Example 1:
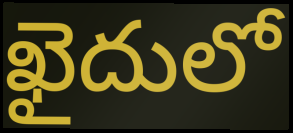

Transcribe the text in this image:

ఖైదులో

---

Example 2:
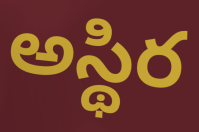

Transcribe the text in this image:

అస్థిర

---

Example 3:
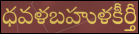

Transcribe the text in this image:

ధవళబహుళకీర్తీ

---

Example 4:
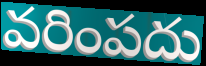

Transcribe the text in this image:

వరింపదు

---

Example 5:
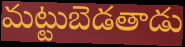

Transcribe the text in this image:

మట్టుబెడతాడు